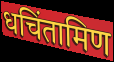
धचिंतामिण